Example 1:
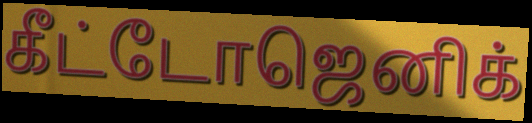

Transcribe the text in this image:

கீட்டோஜெனிக்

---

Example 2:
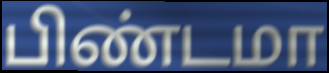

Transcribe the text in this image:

பிண்டமா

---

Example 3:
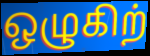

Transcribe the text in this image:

ஒழுகிற்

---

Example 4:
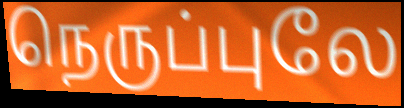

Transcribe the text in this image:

நெருப்புலே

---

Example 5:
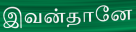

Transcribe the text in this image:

இவன்தானே